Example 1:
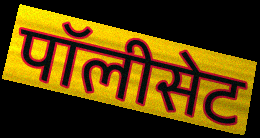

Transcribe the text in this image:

पॉलीसेट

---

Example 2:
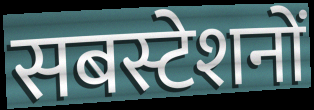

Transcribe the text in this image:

सबस्टेशनों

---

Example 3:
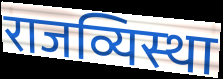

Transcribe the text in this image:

राजव्यिस्था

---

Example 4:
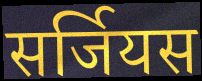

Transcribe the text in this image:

सर्जियस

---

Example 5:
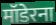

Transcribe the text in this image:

मॉडेरना